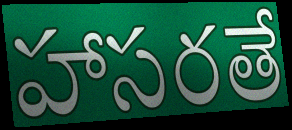
హాసరతే